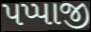
પપ્પાજી